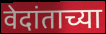
वेदांताच्या